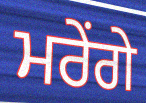
ਮਰੇਂਗੇ